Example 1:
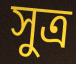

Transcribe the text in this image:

সুত্র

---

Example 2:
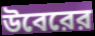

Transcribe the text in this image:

উবেরের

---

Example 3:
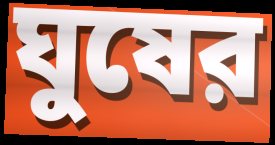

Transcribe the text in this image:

ঘুষের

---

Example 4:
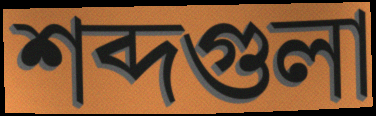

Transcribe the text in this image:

শব্দগুলা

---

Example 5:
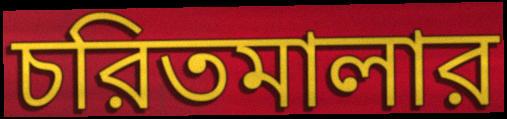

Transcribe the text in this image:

চরিতমালার